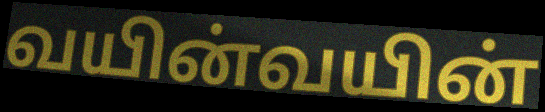
வயின்வயின்